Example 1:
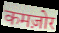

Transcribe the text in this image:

कमज़ोर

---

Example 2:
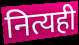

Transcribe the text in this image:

नित्यही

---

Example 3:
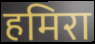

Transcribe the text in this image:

हमिरा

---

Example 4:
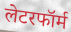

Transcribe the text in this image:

लेटरफॉर्म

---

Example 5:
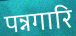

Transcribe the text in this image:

पन्नगारि